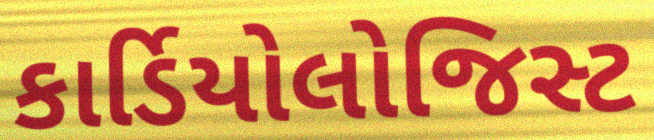
કાર્ડિયોલોજિસ્ટ